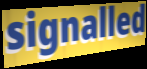
signalled